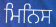
ਮਿਨਿਸ